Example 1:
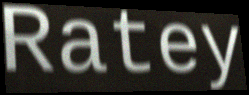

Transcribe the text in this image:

Ratey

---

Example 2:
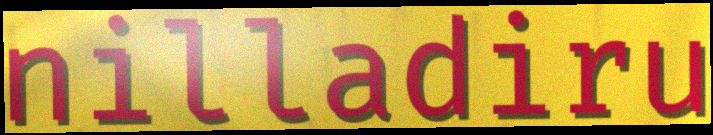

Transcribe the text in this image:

nilladiru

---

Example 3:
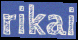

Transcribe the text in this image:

rikai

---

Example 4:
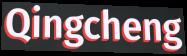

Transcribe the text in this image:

Qingcheng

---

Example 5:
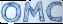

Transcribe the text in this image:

OMC